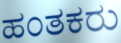
ಹಂತಕರು